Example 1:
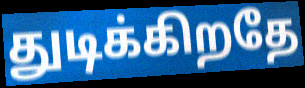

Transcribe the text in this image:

துடிக்கிறதே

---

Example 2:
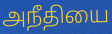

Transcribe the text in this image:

அநீதியை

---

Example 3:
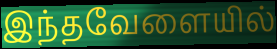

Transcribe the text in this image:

இந்தவேளையில்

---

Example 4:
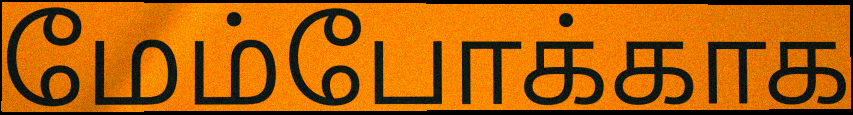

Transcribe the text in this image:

மேம்போக்காக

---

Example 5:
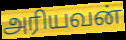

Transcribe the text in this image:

அரியவன்